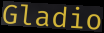
Gladio